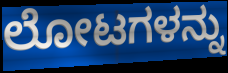
ಲೋಟಗಳನ್ನು